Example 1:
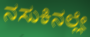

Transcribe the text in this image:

ನಸುಕಿನಲ್ಲೇ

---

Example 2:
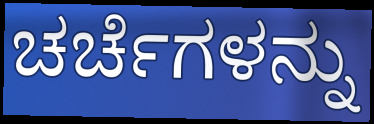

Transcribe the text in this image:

ಚರ್ಚೆಗಳನ್ನು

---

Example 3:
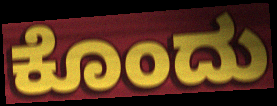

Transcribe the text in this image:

ಕೊಂದು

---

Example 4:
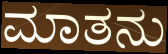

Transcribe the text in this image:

ಮಾತನು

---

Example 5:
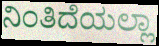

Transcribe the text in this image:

ನಿಂತಿದೆಯಲ್ಲಾ